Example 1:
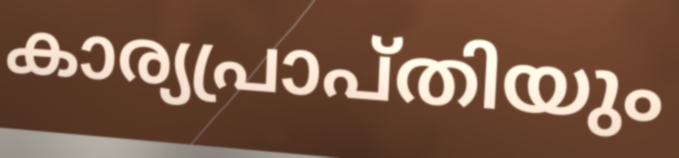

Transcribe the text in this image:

കാര്യപ്രാപ്തിയും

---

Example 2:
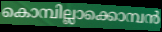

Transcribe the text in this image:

കൊമ്പില്ലാക്കൊമ്പൻ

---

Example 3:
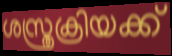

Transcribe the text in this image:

ശസ്ത്രക്രിയക്ക്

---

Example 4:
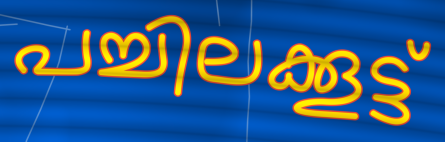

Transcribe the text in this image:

പച്ചിലക്കൂട്ട്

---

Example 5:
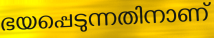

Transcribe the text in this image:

ഭയപ്പെടുന്നതിനാണ്